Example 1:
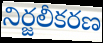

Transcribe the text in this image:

నిర్జలీకరణ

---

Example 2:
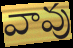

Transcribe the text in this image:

వావు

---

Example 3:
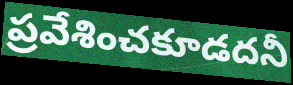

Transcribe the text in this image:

ప్రవేశించకూడదనీ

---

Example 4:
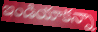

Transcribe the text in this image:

ఇండియాకన్నా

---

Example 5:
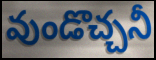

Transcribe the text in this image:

వుండొచ్చనీ